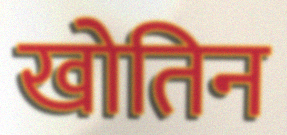
खोतिन